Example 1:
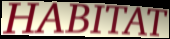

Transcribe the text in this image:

HABITAT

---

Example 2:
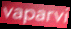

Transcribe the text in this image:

vaparvi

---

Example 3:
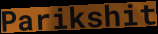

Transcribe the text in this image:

Parikshit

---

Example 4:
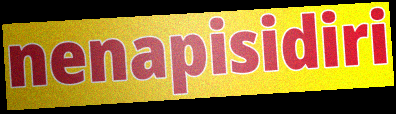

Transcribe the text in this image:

nenapisidiri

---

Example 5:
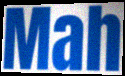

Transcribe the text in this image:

Mah